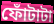
ফোঁটাটা